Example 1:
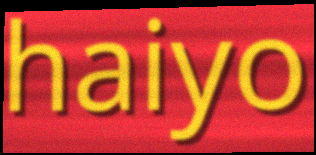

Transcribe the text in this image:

haiyo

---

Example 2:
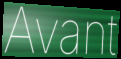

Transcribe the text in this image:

Avant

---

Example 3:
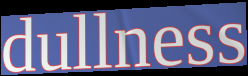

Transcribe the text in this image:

dullness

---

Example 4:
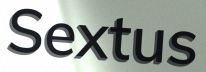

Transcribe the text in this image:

Sextus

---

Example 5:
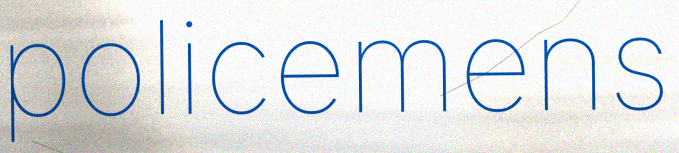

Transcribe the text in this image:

policemens